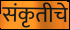
संकृतीचे